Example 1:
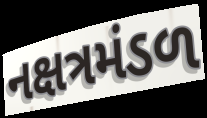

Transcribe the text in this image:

નક્ષત્રમંડળ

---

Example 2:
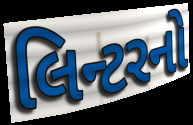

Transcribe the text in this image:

લિન્ટરનો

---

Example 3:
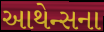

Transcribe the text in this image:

આથેન્સના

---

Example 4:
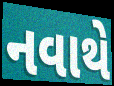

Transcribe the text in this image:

નવાથે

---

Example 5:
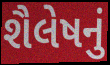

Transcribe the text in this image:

શૈલેષનું